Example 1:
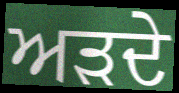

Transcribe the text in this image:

ਅੜਦੇ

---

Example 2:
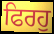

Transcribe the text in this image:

ਫਿਰਹੁ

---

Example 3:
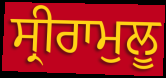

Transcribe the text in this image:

ਸ੍ਰੀਰਾਮੁਲੂ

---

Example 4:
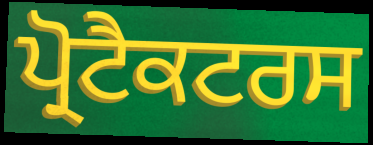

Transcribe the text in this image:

ਪ੍ਰੋਟੈਕਟਰਸ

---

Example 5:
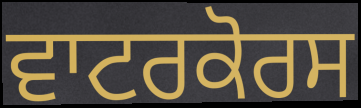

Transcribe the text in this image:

ਵਾਟਰਕੋਰਸ